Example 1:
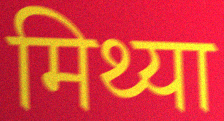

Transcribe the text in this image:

मिथ्या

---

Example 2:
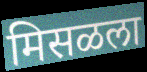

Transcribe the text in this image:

मिसळला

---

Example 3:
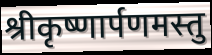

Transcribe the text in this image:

श्रीकृष्णार्पणमस्तु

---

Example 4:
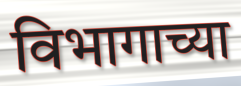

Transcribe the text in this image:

विभागाच्या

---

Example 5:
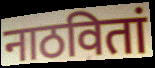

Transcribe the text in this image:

नाठवितां